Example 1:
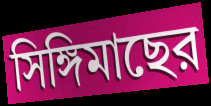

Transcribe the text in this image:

সিঙ্গিমাছের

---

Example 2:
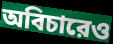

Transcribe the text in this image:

অবিচারেও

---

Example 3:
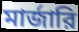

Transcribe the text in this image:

মার্জারি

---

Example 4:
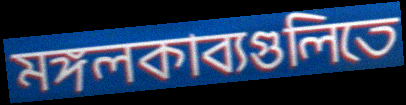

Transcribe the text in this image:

মঙ্গলকাব্যগুলিতে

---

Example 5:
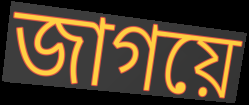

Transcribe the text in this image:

জাগয়ে